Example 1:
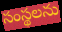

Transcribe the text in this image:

సంస్థలను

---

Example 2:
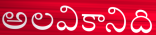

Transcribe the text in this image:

అలవికానిది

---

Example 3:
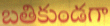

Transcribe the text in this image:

బతికుండగా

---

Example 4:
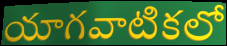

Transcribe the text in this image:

యాగవాటికలో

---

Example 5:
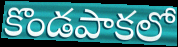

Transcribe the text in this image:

కొండపాకలో